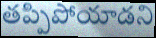
తప్పిపోయాడని